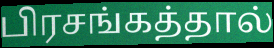
பிரசங்கத்தால்